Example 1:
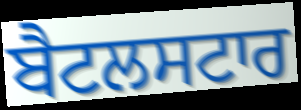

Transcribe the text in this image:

ਬੈਟਲਸਟਾਰ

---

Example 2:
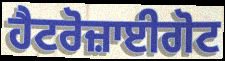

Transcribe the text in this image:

ਹੈਟਰੋਜ਼ਾਈਗੋਟ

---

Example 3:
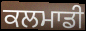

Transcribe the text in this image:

ਕਲਮਾਡੀ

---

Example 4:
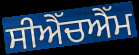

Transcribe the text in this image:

ਸੀਐੱਚਐੱਮ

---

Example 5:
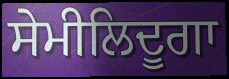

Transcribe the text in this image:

ਸੇਮੀਲਿਦੂਗਾ